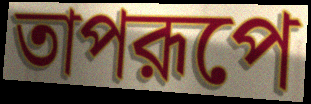
তাপরূপে